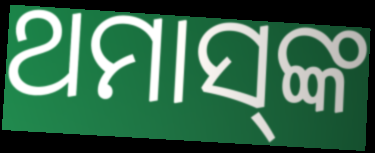
ଥମାସ୍‌ଙ୍କ